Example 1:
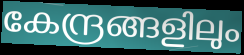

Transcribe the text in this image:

കേന്ദ്രങ്ങളിലും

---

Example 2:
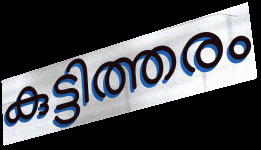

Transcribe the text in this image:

കുട്ടിത്തരം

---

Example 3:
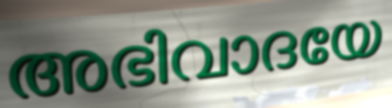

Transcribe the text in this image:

അഭിവാദയേ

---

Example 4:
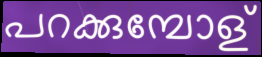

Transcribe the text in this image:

പറക്കുമ്പോള്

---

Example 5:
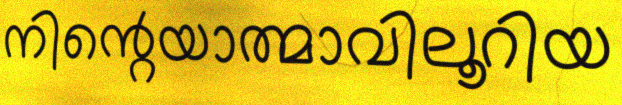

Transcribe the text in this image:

നിന്റെയാത്മാവിലൂറിയ